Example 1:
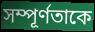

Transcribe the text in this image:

সম্পূর্ণতাকে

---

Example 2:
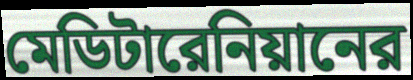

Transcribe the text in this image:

মেডিটারেনিয়ানের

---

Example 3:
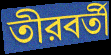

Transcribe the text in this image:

তীরবর্তী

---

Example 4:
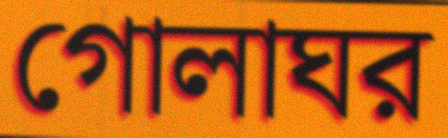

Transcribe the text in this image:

গোলাঘর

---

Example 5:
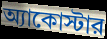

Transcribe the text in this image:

অ্যাকোস্টার